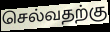
செல்வதற்கு